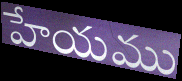
హేయము